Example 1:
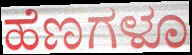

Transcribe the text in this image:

ಹೆಣಗಳೂ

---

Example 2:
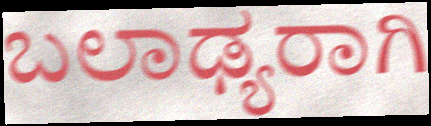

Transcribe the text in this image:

ಬಲಾಢ್ಯರಾಗಿ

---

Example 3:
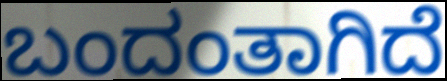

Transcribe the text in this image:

ಬಂದಂತಾಗಿದೆ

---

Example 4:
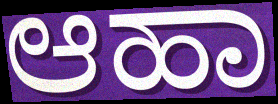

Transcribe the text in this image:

ಆಹಾ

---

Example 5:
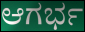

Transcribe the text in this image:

ಆಗರ್ಭ